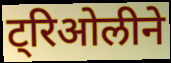
ट्रिओलीने